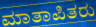
ಮಾತಾಪಿತರು